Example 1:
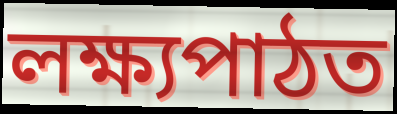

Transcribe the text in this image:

লক্ষ্যপাঠত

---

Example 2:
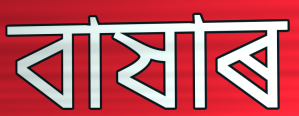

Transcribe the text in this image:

বাষাৰ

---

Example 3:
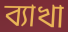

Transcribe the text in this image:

ব্যাখা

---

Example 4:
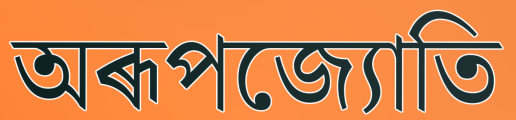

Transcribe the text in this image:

অৰূপজ্যোতি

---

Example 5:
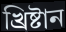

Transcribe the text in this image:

খ্ৰিষ্টান